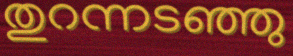
തുറന്നടഞ്ഞു